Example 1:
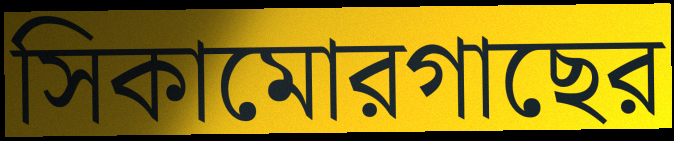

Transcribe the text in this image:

সিকামোরগাছের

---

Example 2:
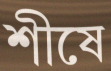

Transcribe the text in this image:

শীষে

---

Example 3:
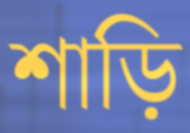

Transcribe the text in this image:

শাড়ি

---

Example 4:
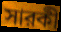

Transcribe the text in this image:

সারকী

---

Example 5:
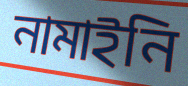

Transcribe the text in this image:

নামাইনি